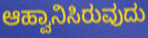
ಆಹ್ವಾನಿಸಿರುವುದು